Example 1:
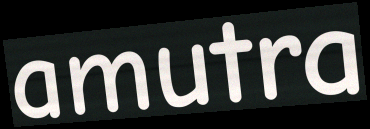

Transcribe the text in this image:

amutra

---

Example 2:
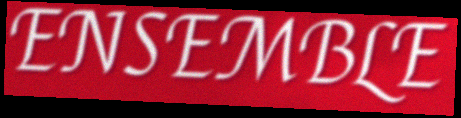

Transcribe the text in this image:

ENSEMBLE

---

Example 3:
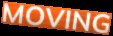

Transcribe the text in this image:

MOVING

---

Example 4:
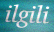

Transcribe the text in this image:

ilgili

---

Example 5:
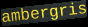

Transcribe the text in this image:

ambergris